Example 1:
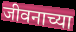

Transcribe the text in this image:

जीवनाच्या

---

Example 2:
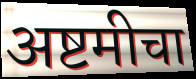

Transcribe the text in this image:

अष्टमीचा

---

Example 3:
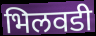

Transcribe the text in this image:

भिलवडी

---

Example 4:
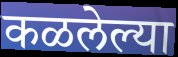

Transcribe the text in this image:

कळलेल्या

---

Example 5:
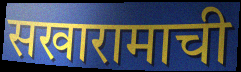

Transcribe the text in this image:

सखारामाची